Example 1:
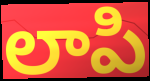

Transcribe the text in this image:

లాపి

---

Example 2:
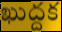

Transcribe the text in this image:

ఖుద్దక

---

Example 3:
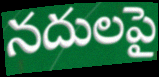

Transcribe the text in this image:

నదులపై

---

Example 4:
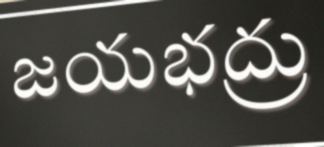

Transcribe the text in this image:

జయభద్రు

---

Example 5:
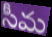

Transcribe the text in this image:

సీమ